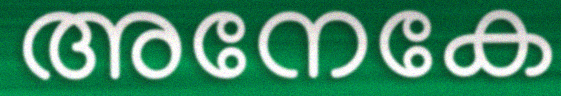
അനേകേ